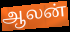
ஆலன்